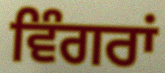
ਵਿੰਗਰਾਂ